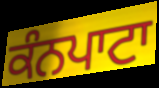
ਕੰਨਪਾਟਾ